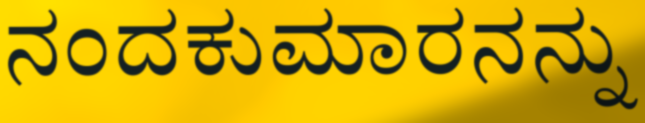
ನಂದಕುಮಾರನನ್ನು